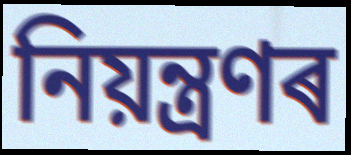
নিয়ন্ত্ৰণৰ